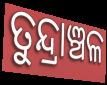
ତୁନ୍ଦ୍ରାଞ୍ଚଳ